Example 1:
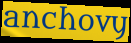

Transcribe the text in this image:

anchovy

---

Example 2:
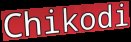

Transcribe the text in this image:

Chikodi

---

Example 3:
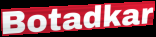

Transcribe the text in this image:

Botadkar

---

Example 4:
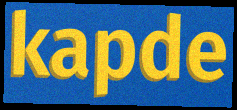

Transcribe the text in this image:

kapde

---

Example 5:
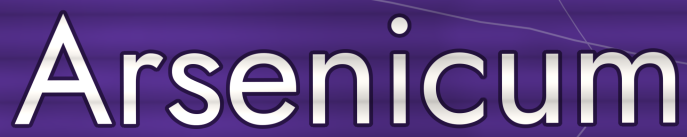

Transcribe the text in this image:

Arsenicum